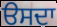
ੳਸਦਾ